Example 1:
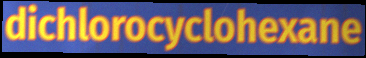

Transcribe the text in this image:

dichlorocyclohexane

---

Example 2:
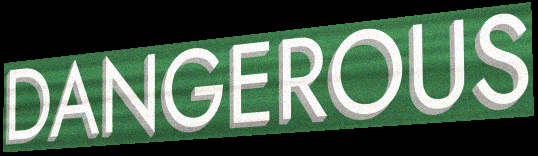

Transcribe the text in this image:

DANGEROUS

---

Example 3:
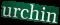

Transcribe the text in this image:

urchin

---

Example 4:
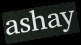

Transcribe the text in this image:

ashay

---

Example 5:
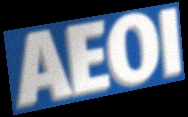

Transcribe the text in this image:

AEOI